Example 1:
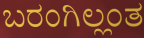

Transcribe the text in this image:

ಬರಂಗಿಲ್ಲಂತ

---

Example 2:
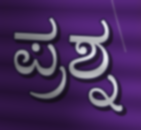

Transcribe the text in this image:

ಪ್ರಶ್ನ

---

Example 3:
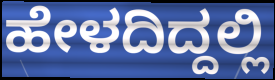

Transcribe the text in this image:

ಹೇಳದಿದ್ದಲ್ಲಿ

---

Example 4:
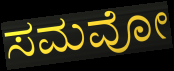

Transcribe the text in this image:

ಸಮವೋ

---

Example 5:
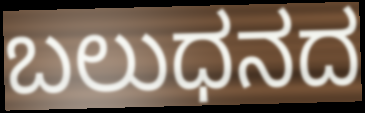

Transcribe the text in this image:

ಬಲುಧನದ